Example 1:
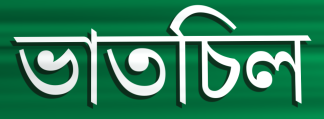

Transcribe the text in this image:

ভাতচিল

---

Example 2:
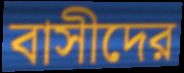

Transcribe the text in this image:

বাসীদের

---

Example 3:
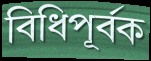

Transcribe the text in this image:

বিধিপূর্বক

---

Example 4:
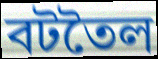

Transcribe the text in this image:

বটতৈল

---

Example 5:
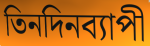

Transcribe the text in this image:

তিনদিনব্যাপী